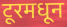
टूरमधून